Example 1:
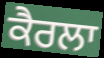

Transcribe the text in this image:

ਕੈਰਲਾ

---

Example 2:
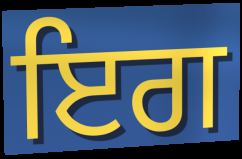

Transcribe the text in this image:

ਇਗ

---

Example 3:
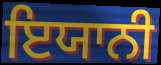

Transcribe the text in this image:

ਇਯਾਨੀ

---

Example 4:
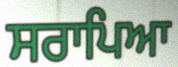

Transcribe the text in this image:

ਸਰਾਪਿਆ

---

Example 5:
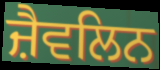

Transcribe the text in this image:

ਜ਼ੈਵਲਿਨ